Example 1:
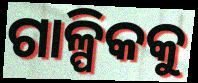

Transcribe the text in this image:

ଗାଳ୍ପିକକୁ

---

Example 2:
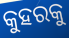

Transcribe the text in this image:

କୁହରକୁ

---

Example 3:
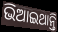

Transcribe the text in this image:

ଭିଆଇଥାନ୍ତି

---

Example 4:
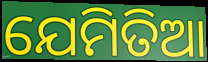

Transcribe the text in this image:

ଯେମିତିଆ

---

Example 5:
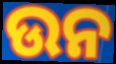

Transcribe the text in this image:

ଉନ